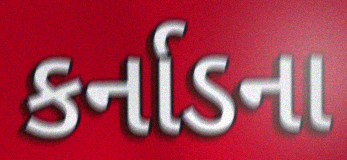
કર્નાડના